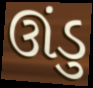
ઊંડુ